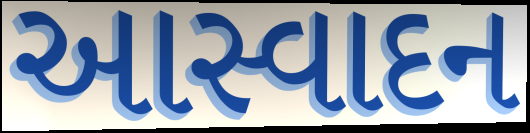
આસ્વાદન